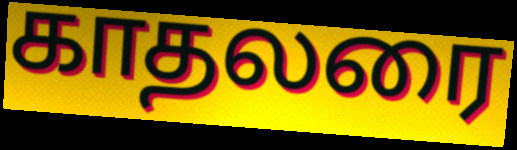
காதலரை